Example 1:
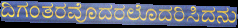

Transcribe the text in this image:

ದಿಗಂತರವೊದರಲೊದರಿಸಿದನು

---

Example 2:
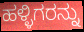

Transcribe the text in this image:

ಹಳ್ಳಿಗರನ್ನು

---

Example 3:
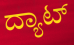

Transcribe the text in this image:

ದ್ಯಾಟ್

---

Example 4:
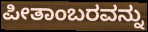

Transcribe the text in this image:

ಪೀತಾಂಬರವನ್ನು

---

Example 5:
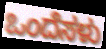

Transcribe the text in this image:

ಒಂದೆಸಳು